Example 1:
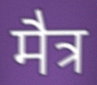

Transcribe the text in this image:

मैत्र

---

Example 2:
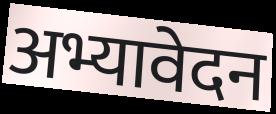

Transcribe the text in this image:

अभ्यावेदन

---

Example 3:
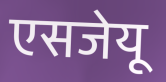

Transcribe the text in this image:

एसजेयू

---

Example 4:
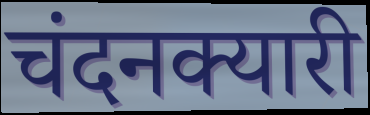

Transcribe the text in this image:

चंदनक्यारी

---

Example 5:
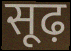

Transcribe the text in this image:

सूढ़